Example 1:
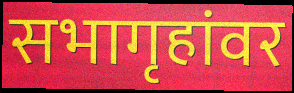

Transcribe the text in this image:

सभागृहांवर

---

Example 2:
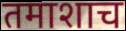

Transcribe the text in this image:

तमाशाच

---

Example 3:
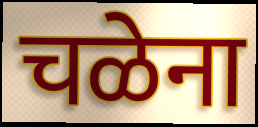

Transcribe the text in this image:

चळेना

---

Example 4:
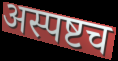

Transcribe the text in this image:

अस्पष्टच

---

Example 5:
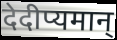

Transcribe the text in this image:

देदीप्यमान्